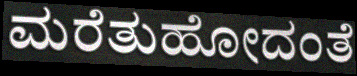
ಮರೆತುಹೋದಂತೆ